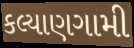
કલ્યાણગામી